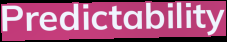
Predictability